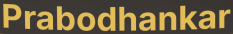
Prabodhankar